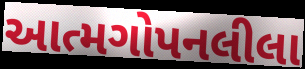
આત્મગોપનલીલા